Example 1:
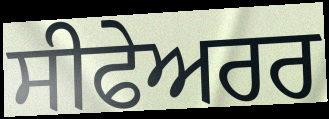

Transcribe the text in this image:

ਸੀਫੇਅਰਰ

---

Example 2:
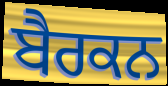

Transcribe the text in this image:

ਬੈਰਕਨ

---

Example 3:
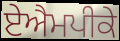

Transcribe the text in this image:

ਏਐਮਪੀਕੇ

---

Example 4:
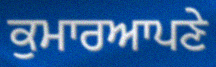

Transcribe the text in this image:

ਕੁਮਾਰਆਪਣੇ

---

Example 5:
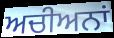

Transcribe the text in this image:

ਅਚੀਅਨਾਂ